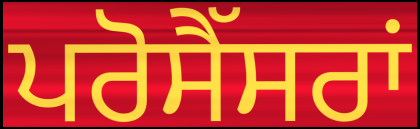
ਪਰੋਸੈੱਸਰਾਂ